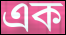
এক